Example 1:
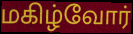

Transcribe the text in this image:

மகிழ்வோர்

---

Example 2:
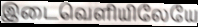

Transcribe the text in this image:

இடைவெளியிலேயே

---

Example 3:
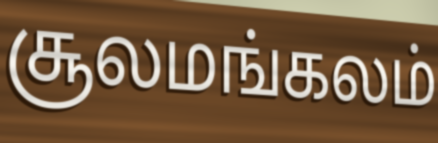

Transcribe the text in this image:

சூலமங்கலம்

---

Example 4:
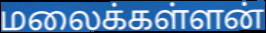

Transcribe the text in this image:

மலைக்கள்ளன்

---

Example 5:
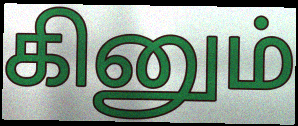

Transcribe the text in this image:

கினும்